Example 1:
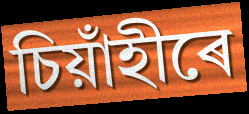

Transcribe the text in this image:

চিয়াঁহীৰে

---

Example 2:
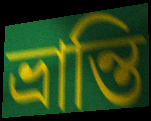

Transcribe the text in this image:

ভ্ৰান্তি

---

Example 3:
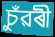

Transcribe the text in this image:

চুঁৱৰী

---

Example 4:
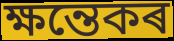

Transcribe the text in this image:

ক্ষন্তেকৰ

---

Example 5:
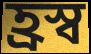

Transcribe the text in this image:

হ্ৰস্ব